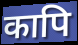
कापि